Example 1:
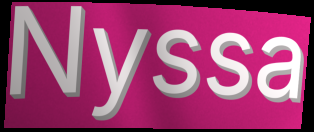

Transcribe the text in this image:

Nyssa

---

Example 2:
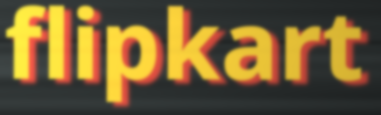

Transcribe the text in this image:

flipkart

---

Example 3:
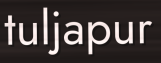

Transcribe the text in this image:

tuljapur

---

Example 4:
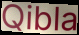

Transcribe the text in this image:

Qibla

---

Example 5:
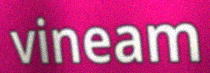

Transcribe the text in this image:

vineam